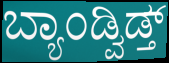
ಬ್ಯಾಂಡ್ವಿಡ್ತ್